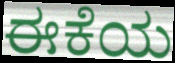
ಈಕೆಯ